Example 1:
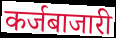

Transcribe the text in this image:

कर्जबाजारी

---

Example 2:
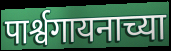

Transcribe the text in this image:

पार्श्वगायनाच्या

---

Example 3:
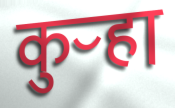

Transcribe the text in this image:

कुऱ्हा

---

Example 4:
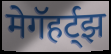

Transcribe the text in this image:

मेगॅहर्ट्झ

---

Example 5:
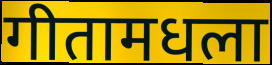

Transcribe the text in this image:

गीतामधला